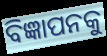
ବିଜ୍ଞାପନକୁ